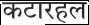
कटारहल